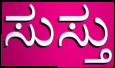
ಸುಸ್ತು